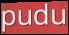
pudu